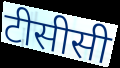
टीसीसी